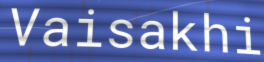
Vaisakhi